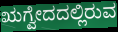
ಋಗ್ವೇದದಲ್ಲಿರುವ